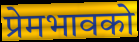
प्रेमभावको